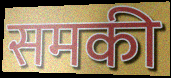
समकी